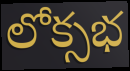
లోక్సభ